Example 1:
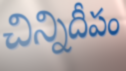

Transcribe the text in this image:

చిన్నిదీపం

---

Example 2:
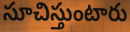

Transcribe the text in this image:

సూచిస్తుంటారు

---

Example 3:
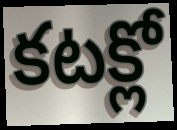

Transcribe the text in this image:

కటక్లో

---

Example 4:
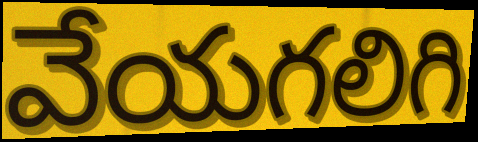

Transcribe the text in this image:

వేయగలిగి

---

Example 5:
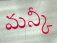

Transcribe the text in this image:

మన్కీ